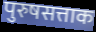
पुरुषसत्ताक